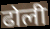
ढोली